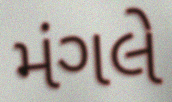
મંગલે